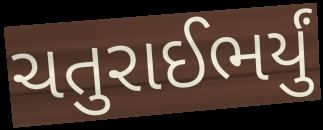
ચતુરાઈભર્યું